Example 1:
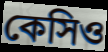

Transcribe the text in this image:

কেসিও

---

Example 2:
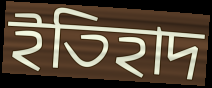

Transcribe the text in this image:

ইতিহাদ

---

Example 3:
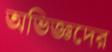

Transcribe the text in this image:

অভিজ্ঞদের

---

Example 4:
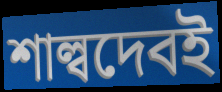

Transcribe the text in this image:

শাল্বদেবই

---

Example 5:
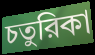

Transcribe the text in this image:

চতুরিকা